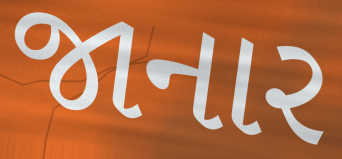
જાનાર